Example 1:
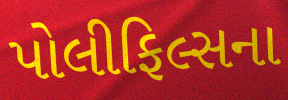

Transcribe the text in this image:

પોલીફિલ્સના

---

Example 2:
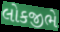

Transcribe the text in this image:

લોકજીભે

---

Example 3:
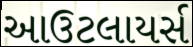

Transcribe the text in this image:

આઉટલાયર્સ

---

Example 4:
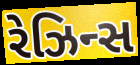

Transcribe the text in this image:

રેઝિન્સ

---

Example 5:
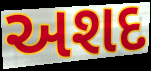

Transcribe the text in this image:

અશદ